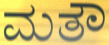
ಮತೌ